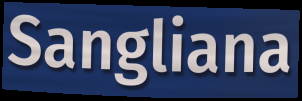
Sangliana